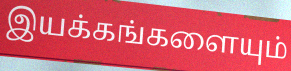
இயக்கங்களையும்